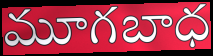
మూగబాధ